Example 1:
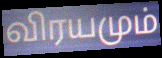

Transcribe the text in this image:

விரயமும்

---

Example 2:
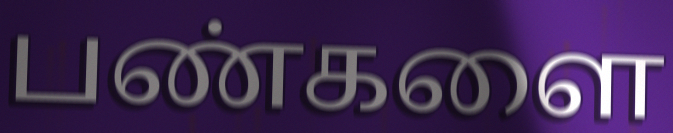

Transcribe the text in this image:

பண்களை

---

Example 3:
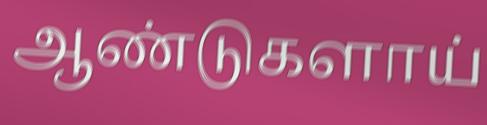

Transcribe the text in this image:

ஆண்டுகளாய்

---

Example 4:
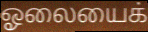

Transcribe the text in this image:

ஓலையைக்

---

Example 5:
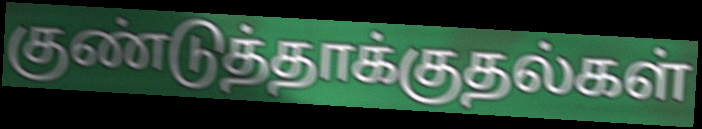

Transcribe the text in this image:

குண்டுத்தாக்குதல்கள்